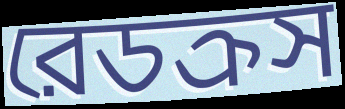
রেডক্রস